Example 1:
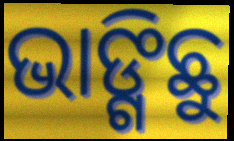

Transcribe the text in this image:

ଭାଙ୍ଗିଛୁ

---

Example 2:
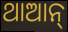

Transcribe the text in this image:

ଥାଆନ୍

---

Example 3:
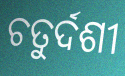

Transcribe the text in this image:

ଚତୁର୍ଦଶୀ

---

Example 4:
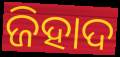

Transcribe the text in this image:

ଜିହାଦ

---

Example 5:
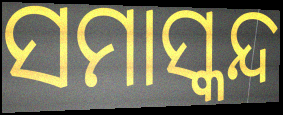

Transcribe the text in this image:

ସମାସ୍କନ୍ଦ